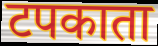
टपकाता